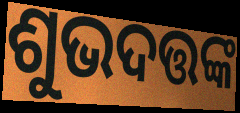
ଶୁଭଦତ୍ତଙ୍କ